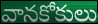
వానకోకులు